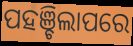
ପହଞ୍ଚିଲାପରେ